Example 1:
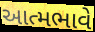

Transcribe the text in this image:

આત્મભાવે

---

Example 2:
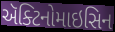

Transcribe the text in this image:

ઍક્ટિનોમાઇસિન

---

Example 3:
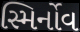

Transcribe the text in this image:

સ્મિર્નોવ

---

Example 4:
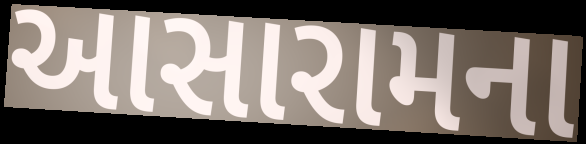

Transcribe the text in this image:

આસારામના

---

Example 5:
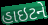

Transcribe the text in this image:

હાઇટને